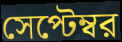
সেপ্টেম্বর